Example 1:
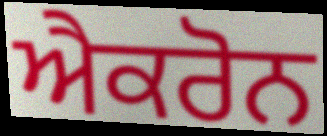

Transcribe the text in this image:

ਐਕਰੋਨ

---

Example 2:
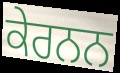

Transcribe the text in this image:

ਕੇਰਨਨ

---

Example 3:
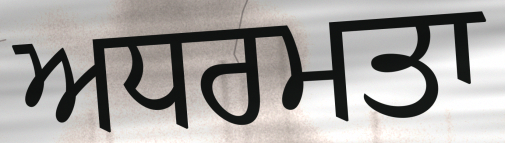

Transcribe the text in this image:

ਅਧਰਮਤਾ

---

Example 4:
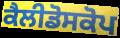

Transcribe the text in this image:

ਕੈਲੀਡੋਸਕੋਪ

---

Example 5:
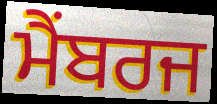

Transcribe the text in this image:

ਮੈਂਬਰਜ